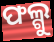
ଫଲ୍ଗୁ